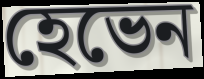
হেভেন